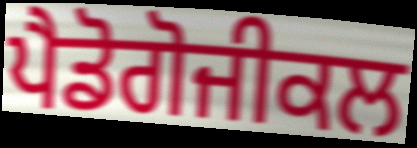
ਪੈਡੋਗੋਜੀਕਲ